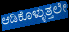
ಆಡಿಕೊಳ್ಳುತ್ತಲೇ